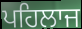
ਪਹਿਲਾਜ